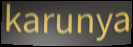
karunya